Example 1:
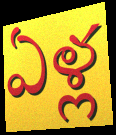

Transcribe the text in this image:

ఏళ్ల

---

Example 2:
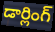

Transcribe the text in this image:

డార్లింగ్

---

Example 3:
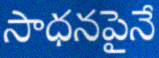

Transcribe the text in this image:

సాధనపైనే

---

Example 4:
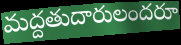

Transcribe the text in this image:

మద్దతుదారులందరూ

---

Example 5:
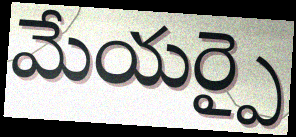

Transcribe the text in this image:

మేయర్పై